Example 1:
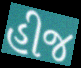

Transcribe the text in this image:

હીજ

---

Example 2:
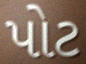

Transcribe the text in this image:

પોટ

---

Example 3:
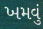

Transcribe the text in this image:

ખમવું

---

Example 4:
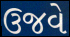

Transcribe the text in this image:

ઉજવે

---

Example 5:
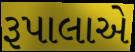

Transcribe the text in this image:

રૂપાલાએ